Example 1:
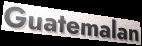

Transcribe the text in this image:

Guatemalan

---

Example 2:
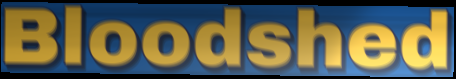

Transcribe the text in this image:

Bloodshed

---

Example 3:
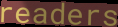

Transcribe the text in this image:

readers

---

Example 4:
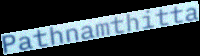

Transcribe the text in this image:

Pathnamthitta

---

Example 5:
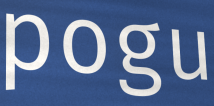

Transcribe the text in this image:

pogu